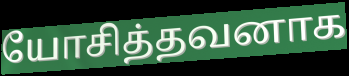
யோசித்தவனாக